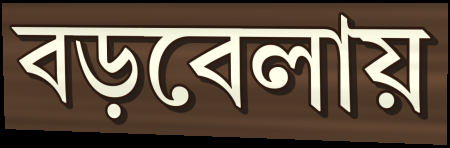
বড়বেলায়